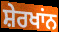
ਸ਼ੇਰਖਾਂਨ